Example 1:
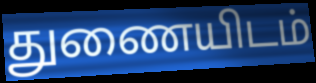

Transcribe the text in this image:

துணையிடம்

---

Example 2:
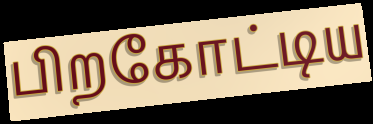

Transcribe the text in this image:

பிறகோட்டிய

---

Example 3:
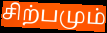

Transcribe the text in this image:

சிற்பமும்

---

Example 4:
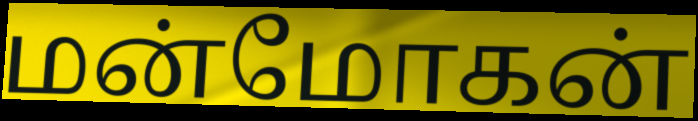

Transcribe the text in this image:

மன்மோகன்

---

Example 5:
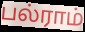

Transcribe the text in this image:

பல்ராம்